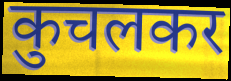
कुचलकर